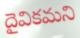
దైవికమని